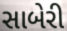
સાબેરી